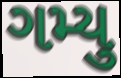
ગમ્યુ